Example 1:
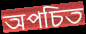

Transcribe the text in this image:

অপচিত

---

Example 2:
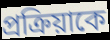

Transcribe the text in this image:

প্রক্রিয়াকে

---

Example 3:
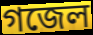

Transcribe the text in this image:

গজেল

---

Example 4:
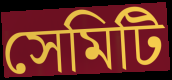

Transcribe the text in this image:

সেমিটি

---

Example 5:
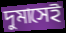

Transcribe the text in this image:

দুমাসেই